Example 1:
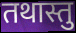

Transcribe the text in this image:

तथास्तु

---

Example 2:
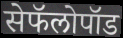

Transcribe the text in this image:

सेफॅलोपॉड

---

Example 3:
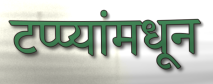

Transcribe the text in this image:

टप्प्यांमधून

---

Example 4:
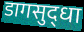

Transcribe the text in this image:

डागसुद्धा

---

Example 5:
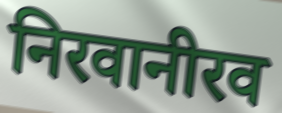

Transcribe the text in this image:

निरवानीरव